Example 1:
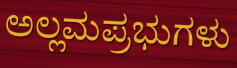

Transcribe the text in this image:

ಅಲ್ಲಮಪ್ರಭುಗಳು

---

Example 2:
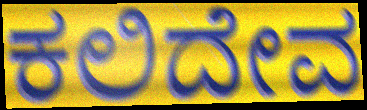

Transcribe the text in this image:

ಕಲಿದೇವ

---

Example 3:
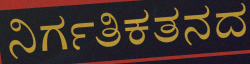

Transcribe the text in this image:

ನಿರ್ಗತಿಕತನದ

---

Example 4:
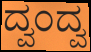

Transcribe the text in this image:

ದ್ವಂದ್ವ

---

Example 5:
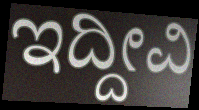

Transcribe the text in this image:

ಇದ್ದೀವಿ